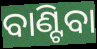
ବାଣ୍ଟିବା